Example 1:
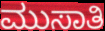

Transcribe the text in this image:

ಮುಸಾತಿ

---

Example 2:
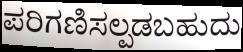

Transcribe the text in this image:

ಪರಿಗಣಿಸಲ್ಪಡಬಹುದು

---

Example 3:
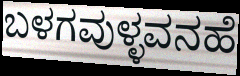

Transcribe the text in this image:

ಬಳಗವುಳ್ಳವನಹೆ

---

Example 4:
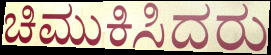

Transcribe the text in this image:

ಚಿಮುಕಿಸಿದರು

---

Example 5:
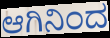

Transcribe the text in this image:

ಆಗಿನಿಂದ